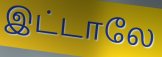
இட்டாலே